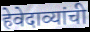
हेवेदाव्यांची